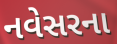
નવેસરના